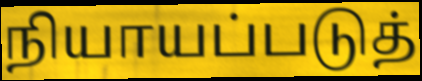
நியாயப்படுத்